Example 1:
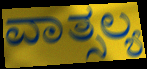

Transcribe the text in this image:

ವಾತ್ಸಲ್ಯ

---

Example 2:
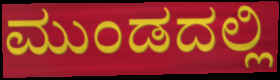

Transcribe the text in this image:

ಮುಂಡದಲ್ಲಿ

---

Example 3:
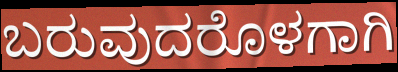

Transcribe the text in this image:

ಬರುವುದರೊಳಗಾಗಿ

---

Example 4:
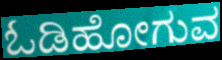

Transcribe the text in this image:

ಓಡಿಹೋಗುವ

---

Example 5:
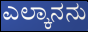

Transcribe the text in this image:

ಎಲ್ಕಾನನು